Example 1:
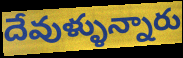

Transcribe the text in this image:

దేవుళ్ళున్నారు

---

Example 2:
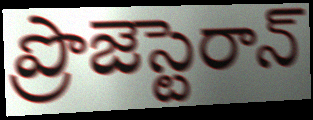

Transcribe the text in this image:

ప్రొజెస్టెరాన్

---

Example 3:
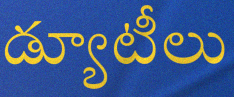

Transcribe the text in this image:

డ్యూటీలు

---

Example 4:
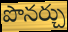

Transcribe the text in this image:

పొనర్చు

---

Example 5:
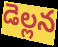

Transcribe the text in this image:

డెల్లన